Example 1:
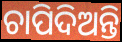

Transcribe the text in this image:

ଚାପିଦିଅନ୍ତି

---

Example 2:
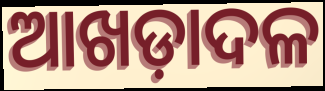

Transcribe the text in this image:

ଆଖଡ଼ାଦଳ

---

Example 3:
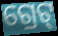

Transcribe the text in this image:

ଗ୍ରେଟ୍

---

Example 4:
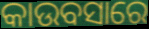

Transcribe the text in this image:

କାଉବସାରେ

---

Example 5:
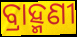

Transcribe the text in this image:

ବ୍ରାହ୍ମଣୀ